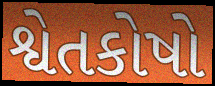
શ્વેતકોષો